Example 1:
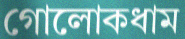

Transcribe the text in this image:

গোলোকধাম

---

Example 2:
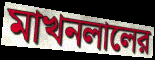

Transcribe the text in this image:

মাখনলালের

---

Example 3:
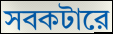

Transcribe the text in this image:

সবকটারে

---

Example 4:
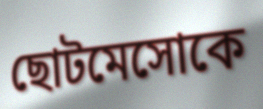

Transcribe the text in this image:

ছোটমেসোকে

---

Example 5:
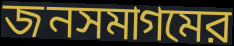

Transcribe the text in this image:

জনসমাগমের